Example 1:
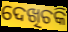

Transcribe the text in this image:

ଦେଖିଚକି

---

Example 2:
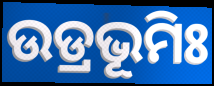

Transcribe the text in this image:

ଉଡ୍ରଭୂମିଃ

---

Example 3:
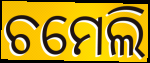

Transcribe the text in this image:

ଚମେଲି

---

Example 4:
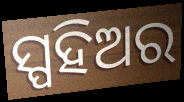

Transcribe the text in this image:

ସ୍ପହିଅର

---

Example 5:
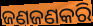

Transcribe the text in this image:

ଜଣଜଣକରି